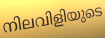
നിലവിളിയുടെ